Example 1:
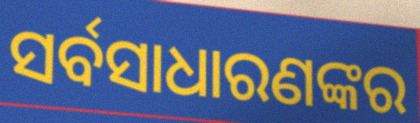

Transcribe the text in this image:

ସର୍ବସାଧାରଣଙ୍କର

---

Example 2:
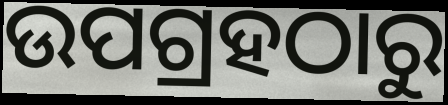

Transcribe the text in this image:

ଉପଗ୍ରହଠାରୁ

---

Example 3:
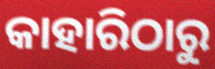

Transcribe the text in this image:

କାହାରିଠାରୁ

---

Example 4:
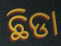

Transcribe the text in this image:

ଛିଡା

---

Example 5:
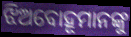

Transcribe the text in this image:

ଝିଅବୋହୂମାନଙ୍କୁ